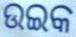
ଉଇକ